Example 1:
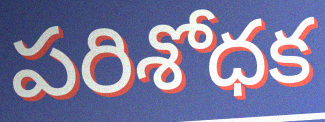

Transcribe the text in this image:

పరిశోధక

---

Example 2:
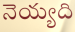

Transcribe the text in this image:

నెయ్యది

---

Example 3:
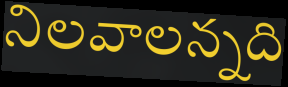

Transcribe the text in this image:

నిలవాలన్నది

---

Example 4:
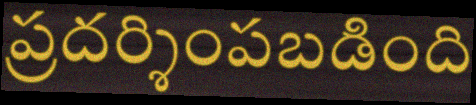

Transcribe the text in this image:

ప్రదర్శింపబడింది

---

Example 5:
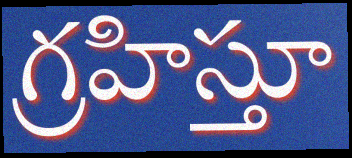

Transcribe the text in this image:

గ్రహిస్తూ